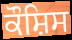
ਕੌਸ਼ਿਸ